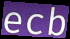
ecb